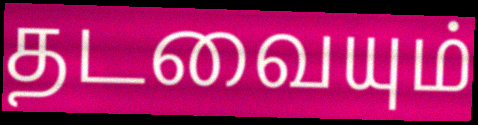
தடவையும்